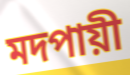
মদপায়ী